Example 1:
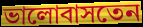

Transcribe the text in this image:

ভালোবাসতেন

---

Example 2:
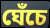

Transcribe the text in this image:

ঘেঁচে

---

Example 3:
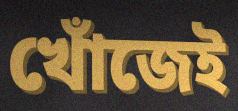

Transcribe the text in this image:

খোঁজেই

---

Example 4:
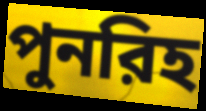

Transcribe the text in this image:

পুনরিহ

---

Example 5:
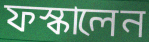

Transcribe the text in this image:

ফস্কালেন